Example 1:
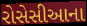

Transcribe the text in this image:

રોસેસીઆના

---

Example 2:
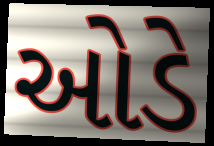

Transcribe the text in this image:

ઓડે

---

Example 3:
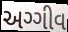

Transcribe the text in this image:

અગ્ગીવ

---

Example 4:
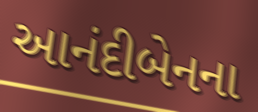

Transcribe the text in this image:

આનંદીબેનના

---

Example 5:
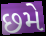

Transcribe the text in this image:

છમે